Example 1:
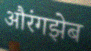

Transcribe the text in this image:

औरंगझेब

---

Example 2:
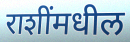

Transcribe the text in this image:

राशींमधील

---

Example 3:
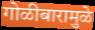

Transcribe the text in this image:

गोळीबारामुळे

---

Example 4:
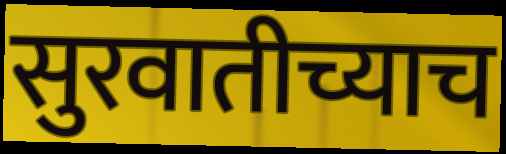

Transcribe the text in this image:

सुरवातीच्याच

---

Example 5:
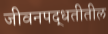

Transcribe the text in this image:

जीवनपद्धतीतील